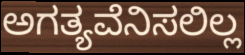
ಅಗತ್ಯವೆನಿಸಲಿಲ್ಲ